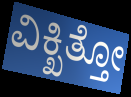
ವಿಕ್ಖಿತ್ತೋ